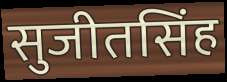
सुजीतसिंह